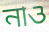
নাও